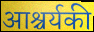
आश्चर्यकी